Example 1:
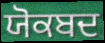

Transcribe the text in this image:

ਯੋਕਬਦ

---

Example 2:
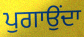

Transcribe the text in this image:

ਪੁਗਾਉਂਦਾ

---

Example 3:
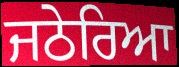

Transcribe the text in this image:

ਜਠੇਰਿਆ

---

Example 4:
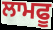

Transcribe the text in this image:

ਲਾਮਫੂ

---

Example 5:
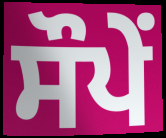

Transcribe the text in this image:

ਸੌਪੇਂ